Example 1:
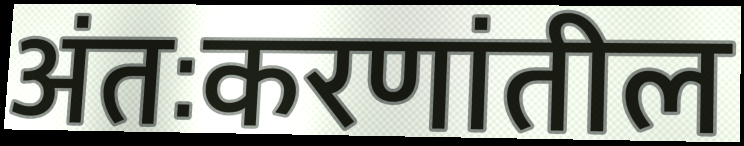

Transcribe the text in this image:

अंतःकरणांतील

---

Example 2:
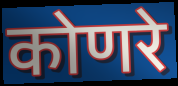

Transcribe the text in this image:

कोणरे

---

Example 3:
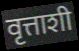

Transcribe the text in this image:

वृत्ताशी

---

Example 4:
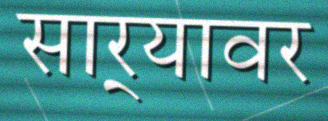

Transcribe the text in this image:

सार्यावर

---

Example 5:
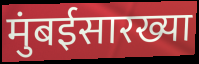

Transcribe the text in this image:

मुंबईसारख्या